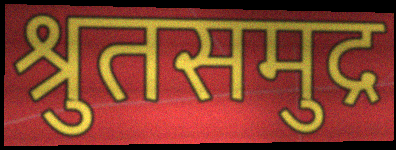
श्रुतसमुद्र